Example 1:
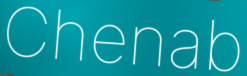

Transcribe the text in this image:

Chenab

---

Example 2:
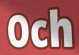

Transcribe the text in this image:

Och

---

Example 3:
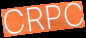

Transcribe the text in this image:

CRPC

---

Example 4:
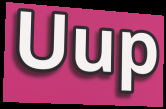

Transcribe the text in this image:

Uup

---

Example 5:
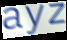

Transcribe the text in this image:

ayz